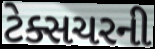
ટેક્સચરની